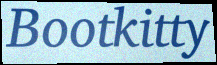
Bootkitty